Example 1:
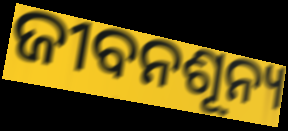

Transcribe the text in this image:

ଜୀବନଶୂନ୍ୟ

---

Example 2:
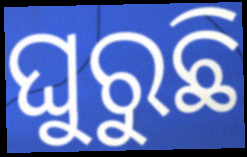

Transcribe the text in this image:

ଘୁରୁଛି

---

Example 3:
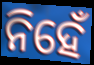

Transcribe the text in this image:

ନିହେଁ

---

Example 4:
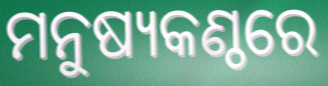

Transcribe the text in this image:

ମନୁଷ୍ୟକଣ୍ଠରେ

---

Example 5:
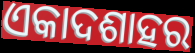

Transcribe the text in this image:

ଏକାଦଶାହର